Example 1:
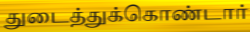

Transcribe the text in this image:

துடைத்துக்கொண்டார்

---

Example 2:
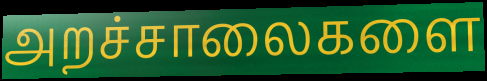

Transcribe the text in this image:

அறச்சாலைகளை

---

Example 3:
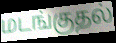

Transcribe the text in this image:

மடங்குதல்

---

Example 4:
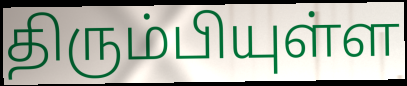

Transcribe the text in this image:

திரும்பியுள்ள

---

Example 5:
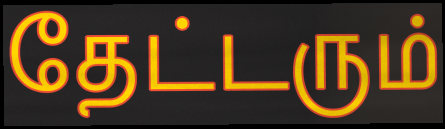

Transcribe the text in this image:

தேட்டரும்